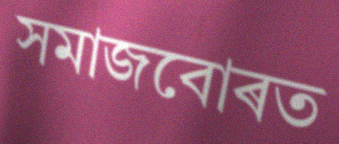
সমাজবোৰত